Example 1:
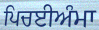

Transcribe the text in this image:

ਪਿਚਈਅੰਮਾ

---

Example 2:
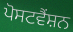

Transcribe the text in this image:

ਪੋਸਟਵੈਂਸ਼ਨ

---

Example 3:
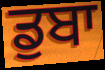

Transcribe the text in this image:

ਡੁਬਾ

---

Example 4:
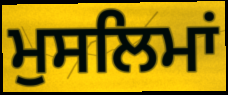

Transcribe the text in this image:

ਮੁਸਲਿਮਾਂ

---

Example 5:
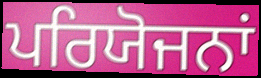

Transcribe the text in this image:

ਪਰਿਯੋਜਨਾਂ